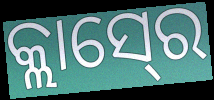
କ୍ଲାସ୍‍ରେ